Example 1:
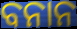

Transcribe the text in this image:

ବନାନ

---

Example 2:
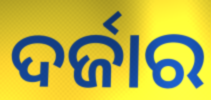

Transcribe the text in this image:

ଦର୍ଜାର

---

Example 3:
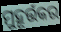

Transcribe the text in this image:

ମୁହୂର୍ତ୍ତକର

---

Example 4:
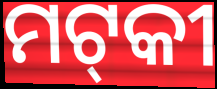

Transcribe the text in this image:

ମଟ୍‌କୀ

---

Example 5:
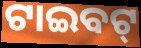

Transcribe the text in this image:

ଟାଇବଟ୍